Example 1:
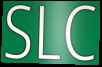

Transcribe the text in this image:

SLC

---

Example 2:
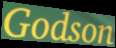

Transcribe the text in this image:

Godson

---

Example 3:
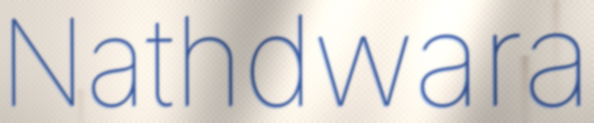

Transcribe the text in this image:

Nathdwara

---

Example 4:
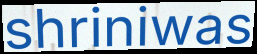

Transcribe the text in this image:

shriniwas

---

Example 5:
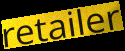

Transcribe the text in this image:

retailer